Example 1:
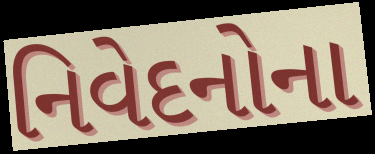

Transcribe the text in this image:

નિવેદનોના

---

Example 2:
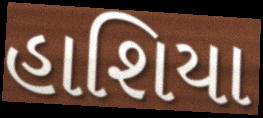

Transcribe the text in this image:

હાશિયા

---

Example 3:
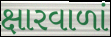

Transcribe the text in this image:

ક્ષારવાળાં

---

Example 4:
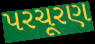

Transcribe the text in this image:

પરચૂરણ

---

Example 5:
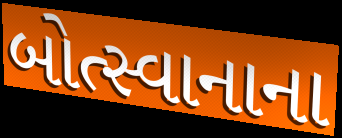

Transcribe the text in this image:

બોત્સ્વાનાના